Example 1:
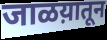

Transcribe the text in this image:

जाळय़ातून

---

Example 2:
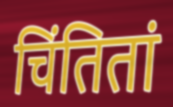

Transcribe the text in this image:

चिंतितां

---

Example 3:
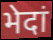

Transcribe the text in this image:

भेदां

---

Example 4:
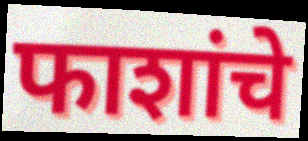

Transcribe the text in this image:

फाशांचे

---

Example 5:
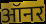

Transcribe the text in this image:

ऑनर